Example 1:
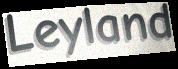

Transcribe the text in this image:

Leyland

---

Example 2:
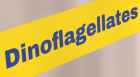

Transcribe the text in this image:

Dinoflagellates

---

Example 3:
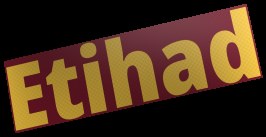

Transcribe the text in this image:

Etihad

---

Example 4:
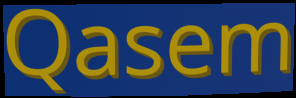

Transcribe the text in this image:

Qasem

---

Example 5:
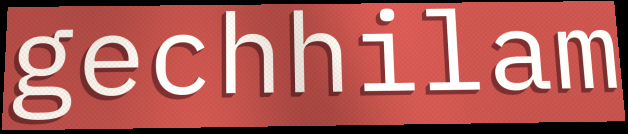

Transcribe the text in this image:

gechhilam